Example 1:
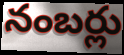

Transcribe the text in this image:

నంబర్లు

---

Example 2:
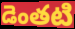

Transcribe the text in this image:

డెంతటి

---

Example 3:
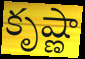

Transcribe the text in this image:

కృష్ణా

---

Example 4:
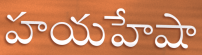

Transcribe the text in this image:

హయహేషా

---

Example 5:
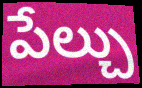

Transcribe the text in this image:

పేల్చు